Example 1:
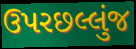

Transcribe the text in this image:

ઉપરછલ્લુંજ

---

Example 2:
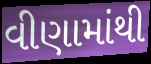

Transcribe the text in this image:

વીણામાંથી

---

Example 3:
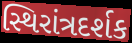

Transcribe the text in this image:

સ્થિરાંત્રદર્શક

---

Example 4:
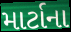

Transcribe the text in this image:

માર્ટાના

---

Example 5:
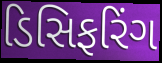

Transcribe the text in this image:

ડિસિફરિંગ